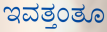
ಇವತ್ತಂತೂ